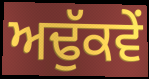
ਅਢੁੱਕਵੇਂ